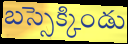
బస్సెక్కిండు